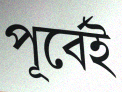
পূৰ্বেই